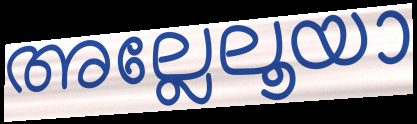
അല്ലേലൂയാ